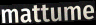
mattume